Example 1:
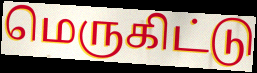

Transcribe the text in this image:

மெருகிட்டு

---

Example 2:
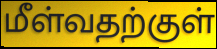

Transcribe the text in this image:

மீள்வதற்குள்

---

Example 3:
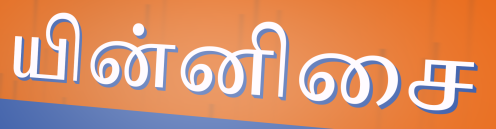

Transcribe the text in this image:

யின்னிசை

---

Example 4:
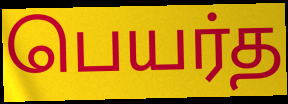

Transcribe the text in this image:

பெயர்த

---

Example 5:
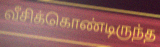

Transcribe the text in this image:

வீசிக்கொண்டிருந்த